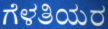
ಗೆಳತಿಯರ